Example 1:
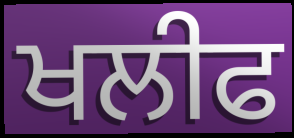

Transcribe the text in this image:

ਖਲੀਫ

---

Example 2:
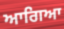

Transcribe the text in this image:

ਆਗਿਆ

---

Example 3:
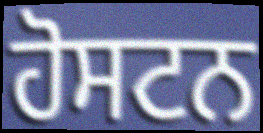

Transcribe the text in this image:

ਹੋਸਟਨ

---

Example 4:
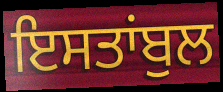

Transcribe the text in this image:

ਇਸਤਾਂਬੁਲ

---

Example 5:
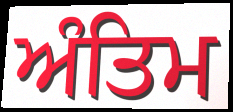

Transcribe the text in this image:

ਅੰਤਿਮ